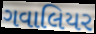
ગવાલિયર